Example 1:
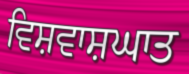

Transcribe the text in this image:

ਵਿਸ਼ਵਾਸ਼ਘਾਤ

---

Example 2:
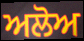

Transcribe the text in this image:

ਅਲੋਅ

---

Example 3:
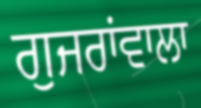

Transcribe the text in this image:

ਗੁਜਰਾਂਵਾਲਾ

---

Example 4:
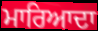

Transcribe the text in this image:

ਮਾਰਿਆਦਾ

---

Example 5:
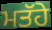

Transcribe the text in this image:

ਮਤੱਹੇ